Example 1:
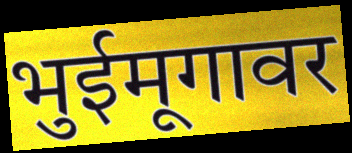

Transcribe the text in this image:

भुईमूगावर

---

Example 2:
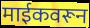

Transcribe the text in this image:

माईकवरून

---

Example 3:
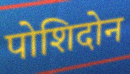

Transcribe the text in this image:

पोशिदोन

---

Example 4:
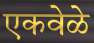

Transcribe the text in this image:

एकवेळे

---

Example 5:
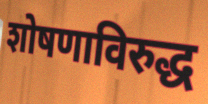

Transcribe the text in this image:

शोषणाविरुद्ध